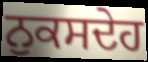
ਨੁਕਸਦੇਹ